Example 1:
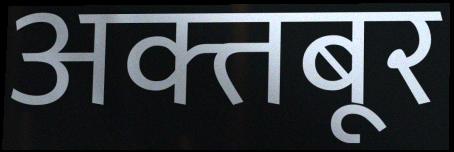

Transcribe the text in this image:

अक्तबूर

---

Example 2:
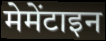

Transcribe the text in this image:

मेमेंटाइन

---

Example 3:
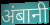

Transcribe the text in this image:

अंबानी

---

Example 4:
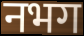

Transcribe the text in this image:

नभग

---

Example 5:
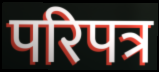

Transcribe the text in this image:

परिपत्र